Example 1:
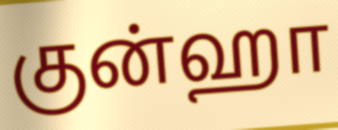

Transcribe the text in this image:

குன்ஹா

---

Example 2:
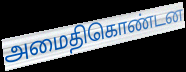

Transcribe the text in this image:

அமைதிகொண்டன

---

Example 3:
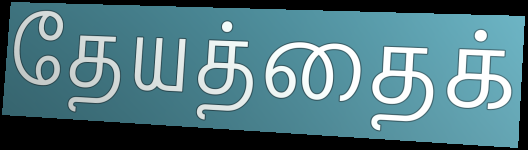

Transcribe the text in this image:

தேயத்தைக்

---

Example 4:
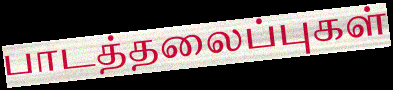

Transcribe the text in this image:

பாடத்தலைப்புகள்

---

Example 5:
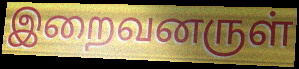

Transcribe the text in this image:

இறைவனருள்